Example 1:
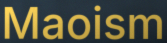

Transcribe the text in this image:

Maoism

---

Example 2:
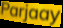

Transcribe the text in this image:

Parjaay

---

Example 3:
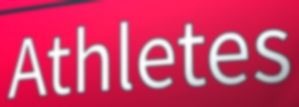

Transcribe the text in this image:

Athletes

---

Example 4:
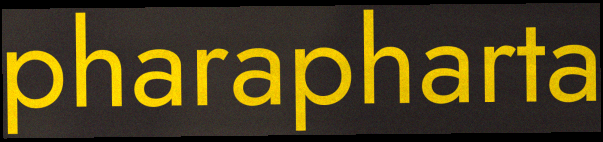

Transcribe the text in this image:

pharapharta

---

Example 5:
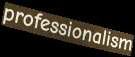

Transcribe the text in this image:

professionalism